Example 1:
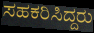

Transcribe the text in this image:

ಸಹಕರಿಸಿದ್ದರು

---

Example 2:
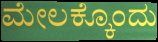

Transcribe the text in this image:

ಮೇಲಕ್ಕೊಂದು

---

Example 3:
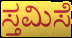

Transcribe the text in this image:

ಸ್ತಮಿಸೆ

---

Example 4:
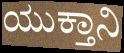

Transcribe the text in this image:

ಯುಕ್ತಾನಿ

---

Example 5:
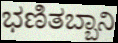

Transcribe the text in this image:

ಭಣಿತಬ್ಬಾನಿ